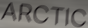
ARCTIC